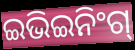
ଇଭିଇନିଂଗ୍